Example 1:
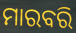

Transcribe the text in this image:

ମାରବରି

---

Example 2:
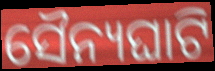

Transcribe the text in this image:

ସୈନ୍ୟଘାଟି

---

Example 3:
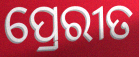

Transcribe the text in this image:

ପ୍ରେରୀତ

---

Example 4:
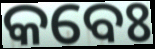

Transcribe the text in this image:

କବେଃ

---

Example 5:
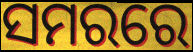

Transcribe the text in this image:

ସମରରେ